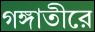
গঙ্গাতীরে